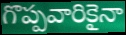
గొప్పవారికైనా